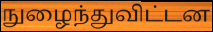
நுழைந்துவிட்டன